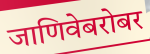
जाणिवेबरोबर